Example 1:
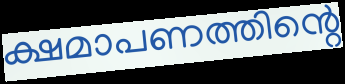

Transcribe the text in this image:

ക്ഷമാപണത്തിന്റെ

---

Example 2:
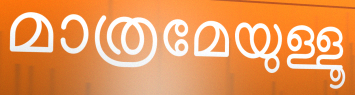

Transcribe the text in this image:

മാത്രമേയുള്ളൂ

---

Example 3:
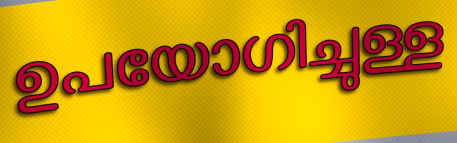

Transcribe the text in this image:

ഉപയോഗിച്ചുള്ള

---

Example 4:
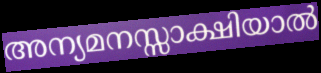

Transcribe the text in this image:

അന്യമനസ്സാക്ഷിയാൽ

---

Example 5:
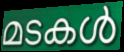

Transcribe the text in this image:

മടകൾ